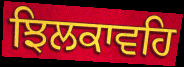
ਝਿਲਕਾਵਹਿ